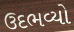
ઉદભવ્યો